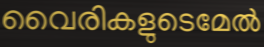
വൈരികളുടെമേൽ